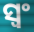
ସ୍ୱଂ